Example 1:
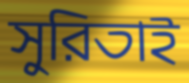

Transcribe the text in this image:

সুরিতাই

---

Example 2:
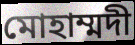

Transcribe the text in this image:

মোহাম্মদী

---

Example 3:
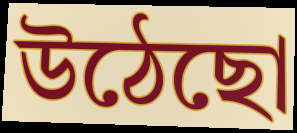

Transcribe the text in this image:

উঠেছো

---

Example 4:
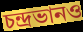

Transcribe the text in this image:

চন্দ্রভানও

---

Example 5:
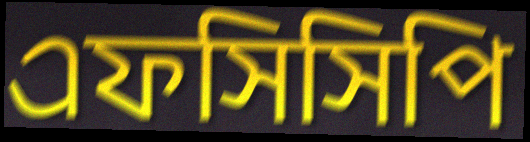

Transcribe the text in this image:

এফসিসিপি